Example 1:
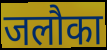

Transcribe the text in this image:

जलौका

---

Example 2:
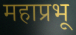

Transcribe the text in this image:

महाप्रभू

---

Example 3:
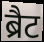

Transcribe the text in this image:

ब्रैट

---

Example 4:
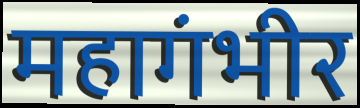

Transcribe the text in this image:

महागंभीर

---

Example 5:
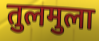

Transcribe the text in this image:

तुलमुला